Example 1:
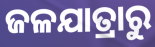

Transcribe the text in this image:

ଜଳଯାତ୍ରାରୁ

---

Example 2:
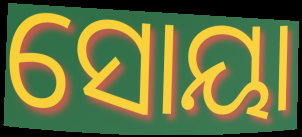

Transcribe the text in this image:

ସୋୟା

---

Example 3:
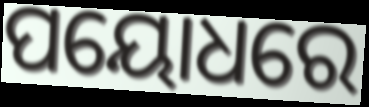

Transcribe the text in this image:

ପୟୋଧରେ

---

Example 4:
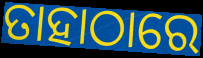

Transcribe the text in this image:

ତାହାଠାରେ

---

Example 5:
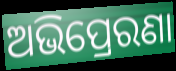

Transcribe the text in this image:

ଅଭିପ୍ରେରଣା